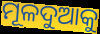
ମୂଳଦୁଆକୁ